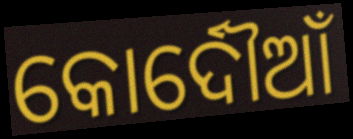
କୋର୍ଦୌଆଁ